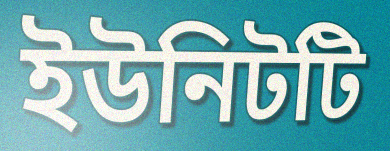
ইউনিটটি